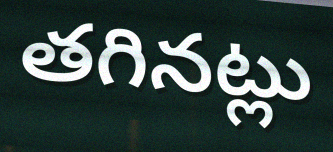
తగినట్లు